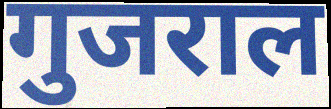
गुजराल